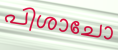
പിശാചോ